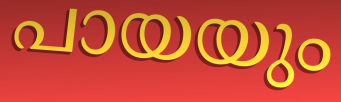
പായയും